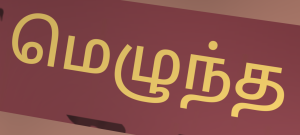
மெழுந்த